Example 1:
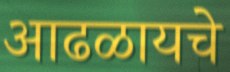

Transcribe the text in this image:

आढळायचे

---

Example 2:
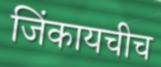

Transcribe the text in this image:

जिंकायचीच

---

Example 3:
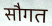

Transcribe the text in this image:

सौगत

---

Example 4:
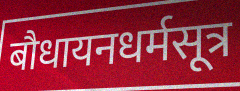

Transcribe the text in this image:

बौधायनधर्मसूत्र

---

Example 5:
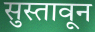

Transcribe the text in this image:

सुस्तावून